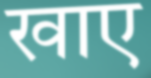
खाए